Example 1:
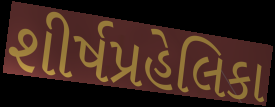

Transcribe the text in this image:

શીર્ષપ્રહેલિકા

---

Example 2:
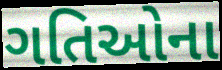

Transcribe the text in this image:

ગતિઓના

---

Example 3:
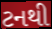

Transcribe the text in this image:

ટનથી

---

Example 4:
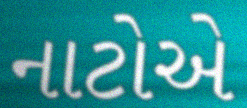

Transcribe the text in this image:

નાટોએ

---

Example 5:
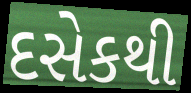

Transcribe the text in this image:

દસેકથી